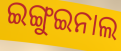
ଇଙ୍ଗୁଇନାଲ